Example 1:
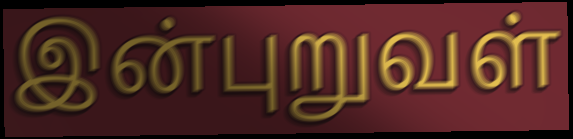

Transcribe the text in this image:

இன்புறுவள்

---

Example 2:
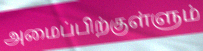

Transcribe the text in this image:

அமைப்பிற்குள்ளும்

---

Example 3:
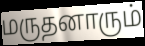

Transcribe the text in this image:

மருதனாரும்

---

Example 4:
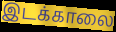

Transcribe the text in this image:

இடக்காலை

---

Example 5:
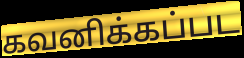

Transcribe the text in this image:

கவனிக்கப்பட